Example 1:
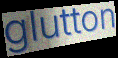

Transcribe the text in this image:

glutton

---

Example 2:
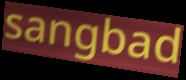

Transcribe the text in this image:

sangbad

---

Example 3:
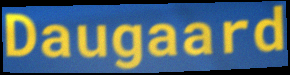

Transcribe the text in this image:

Daugaard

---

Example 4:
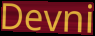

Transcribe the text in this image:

Devni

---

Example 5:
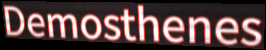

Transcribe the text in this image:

Demosthenes